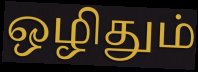
ஒழிதும்